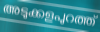
അടുക്കളപുറത്ത്